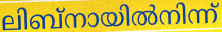
ലിബ്നായിൽനിന്ന്